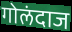
गोलंदाज